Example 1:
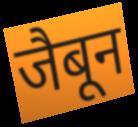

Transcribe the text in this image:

जैबून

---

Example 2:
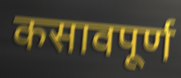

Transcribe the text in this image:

कसावपूर्ण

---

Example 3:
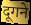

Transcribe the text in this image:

दूगने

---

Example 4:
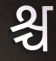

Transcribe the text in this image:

श्च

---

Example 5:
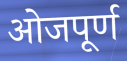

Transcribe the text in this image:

ओजपूर्ण